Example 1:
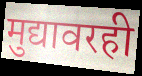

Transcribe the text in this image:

मुद्यावरही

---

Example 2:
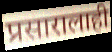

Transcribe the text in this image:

प्रसारालाही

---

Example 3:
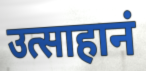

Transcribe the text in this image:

उत्साहानं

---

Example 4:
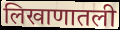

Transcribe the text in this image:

लिखाणातली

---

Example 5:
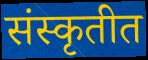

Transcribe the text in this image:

संस्कृतीत